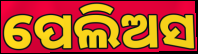
ପେଲିଅସ